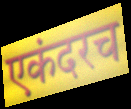
एकंदरच